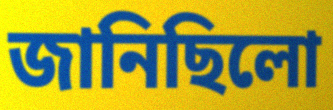
জানিছিলো